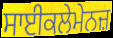
ਸਾਈਕਲੇਮੇਨਜ਼